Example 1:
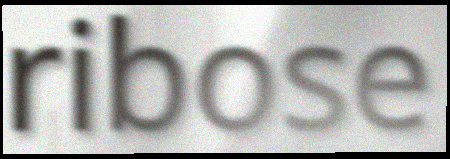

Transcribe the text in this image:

ribose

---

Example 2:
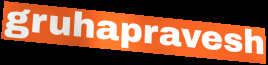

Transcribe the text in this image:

gruhapravesh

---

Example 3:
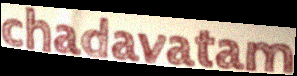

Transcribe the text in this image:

chadavatam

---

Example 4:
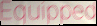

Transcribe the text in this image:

Equipped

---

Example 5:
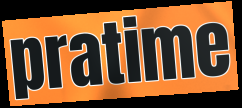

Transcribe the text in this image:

pratime